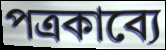
পত্রকাব্যে